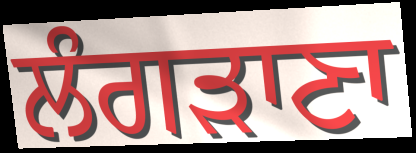
ਲੰਗੜਾਣਾ